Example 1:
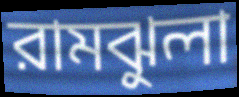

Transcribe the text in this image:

রামঝুলা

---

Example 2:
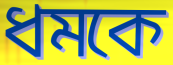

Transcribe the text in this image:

ধমকে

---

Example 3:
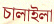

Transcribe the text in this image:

চালাইলা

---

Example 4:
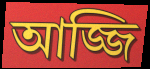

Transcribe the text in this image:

আজ্জি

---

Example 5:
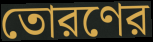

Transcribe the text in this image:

তোরণের